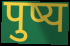
पुष्य